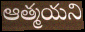
ఆత్మయని